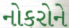
નોકરોને